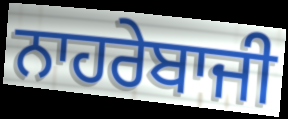
ਨਾਹਰੇਬਾਜੀ